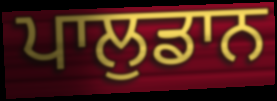
ਪਾਲੁਡਾਨ